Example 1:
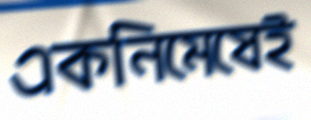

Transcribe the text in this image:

একনিমেষেই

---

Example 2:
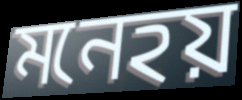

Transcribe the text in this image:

মনেহয়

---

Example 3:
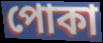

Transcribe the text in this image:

পোকা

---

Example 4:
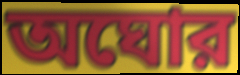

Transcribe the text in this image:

অঘোর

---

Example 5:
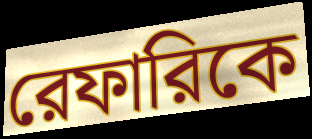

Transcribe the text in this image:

রেফারিকে